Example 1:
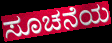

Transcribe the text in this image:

ಸೂಚನೆಯ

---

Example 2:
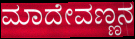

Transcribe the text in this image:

ಮಾದೇವಣ್ಣನ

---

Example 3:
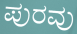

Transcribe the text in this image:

ಪುರವು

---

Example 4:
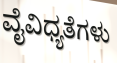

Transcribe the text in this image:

ವೈವಿಧ್ಯತೆಗಳು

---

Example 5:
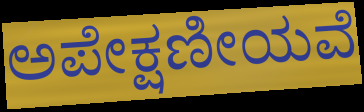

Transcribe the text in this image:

ಅಪೇಕ್ಷಣೀಯವೆ